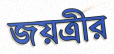
জয়ত্রীর